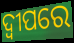
ଦ୍ୱୀପରେ